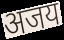
अजय